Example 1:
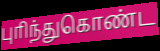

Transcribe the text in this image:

புரிந்துகொண்ட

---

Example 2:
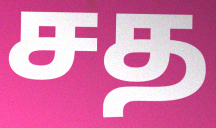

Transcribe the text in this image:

சத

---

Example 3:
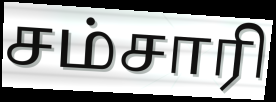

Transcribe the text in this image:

சம்சாரி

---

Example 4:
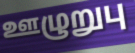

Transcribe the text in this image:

ஊழுறுபு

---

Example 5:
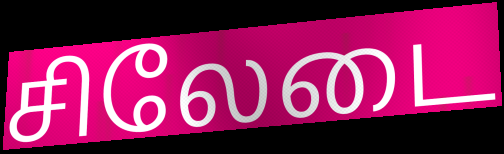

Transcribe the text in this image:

சிலேடை